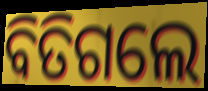
ବିତିଗଲେ